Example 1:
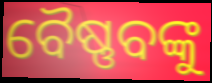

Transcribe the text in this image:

ବୈଷ୍ଣବଙ୍କୁ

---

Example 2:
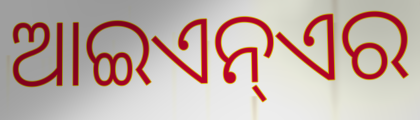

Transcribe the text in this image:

ଆଇଏନ୍ଏର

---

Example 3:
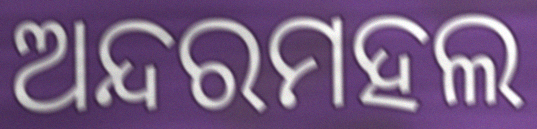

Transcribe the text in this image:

ଅନ୍ଦରମହଲ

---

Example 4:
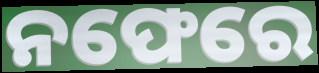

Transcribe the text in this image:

ନଫେରେ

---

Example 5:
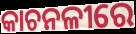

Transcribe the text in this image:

କାଚନଳୀରେ